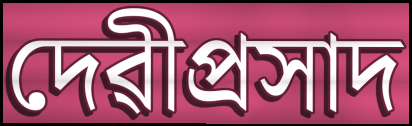
দেৱীপ্ৰসাদ